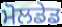
ਮੋਲਡੇਡ